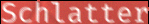
Schlatter